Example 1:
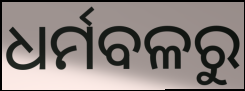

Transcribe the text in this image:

ଧର୍ମବଳରୁ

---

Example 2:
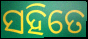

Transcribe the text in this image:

ସହିତେ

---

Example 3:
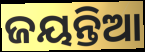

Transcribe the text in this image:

ଜୟନ୍ତିଆ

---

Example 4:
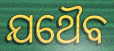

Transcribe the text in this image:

ଯଥୈବ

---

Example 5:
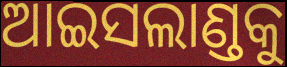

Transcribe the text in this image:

ଆଇସଲାଣ୍ଡକୁ